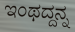
ಇಂಥದ್ದನ್ನ